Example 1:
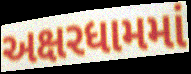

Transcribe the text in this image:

અક્ષરધામમાં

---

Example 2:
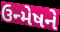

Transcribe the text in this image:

ઉન્મેષને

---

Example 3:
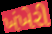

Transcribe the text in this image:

ખંખેરી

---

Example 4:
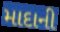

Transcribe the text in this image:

માદાની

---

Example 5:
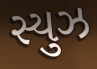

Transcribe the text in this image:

સ્યુઝ